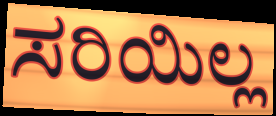
ಸರಿಯಿಲ್ಲ